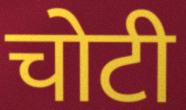
चोटी